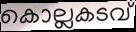
കൊല്ലകടവ്